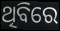
ଥିବିରେ